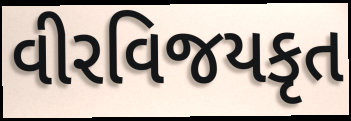
વીરવિજયકૃત